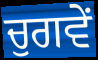
ਚੁਗਵੇਂ